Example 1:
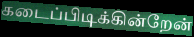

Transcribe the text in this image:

கடைப்பிடிக்கின்றேன்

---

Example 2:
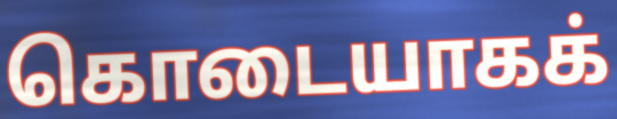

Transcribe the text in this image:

கொடையாகக்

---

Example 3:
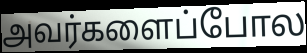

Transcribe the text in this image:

அவர்களைப்போல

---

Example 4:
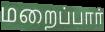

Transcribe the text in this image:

மறைப்பார்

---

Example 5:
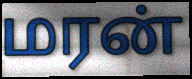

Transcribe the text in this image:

மரன்